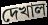
দেখাল